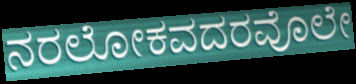
ನರಲೋಕವದರವೊಲೇ